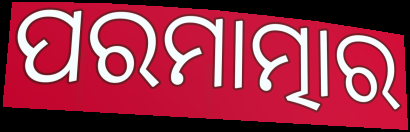
ପରମାତ୍ମାର